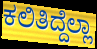
ಕಲಿತಿದ್ದೆಲ್ಲಾ